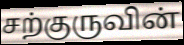
சற்குருவின்